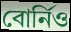
বোৰ্নিও